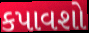
કપાવશો